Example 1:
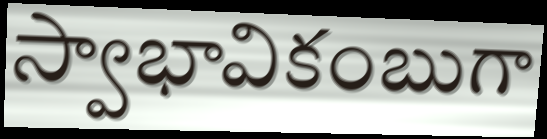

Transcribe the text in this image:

స్వాభావికంబుగా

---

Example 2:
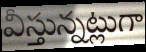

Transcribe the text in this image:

వీస్తున్నట్లుగా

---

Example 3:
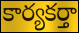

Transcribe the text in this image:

కార్యకర్తా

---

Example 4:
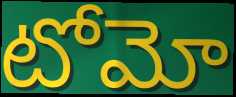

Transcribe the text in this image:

టోమో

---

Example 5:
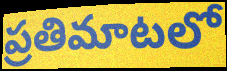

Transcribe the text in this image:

ప్రతిమాటలో